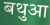
बथुआ